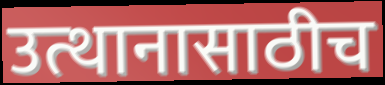
उत्थानासाठीच